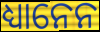
ଧ୍ୟାନେନ